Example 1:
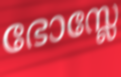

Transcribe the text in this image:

ഭോസ്ലേ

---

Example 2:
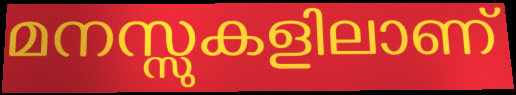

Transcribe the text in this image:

മനസ്സുകളിലാണ്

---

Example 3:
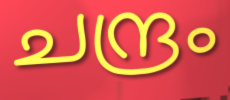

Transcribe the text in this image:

ചന്ദ്രം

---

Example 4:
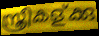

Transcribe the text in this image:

സ്ത്രീകള്ക്കു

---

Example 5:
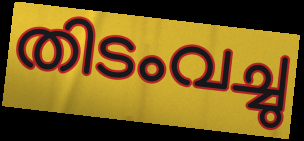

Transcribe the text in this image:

തിടംവച്ചു